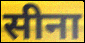
सीना